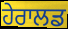
ਹੇਰਾਲਡ